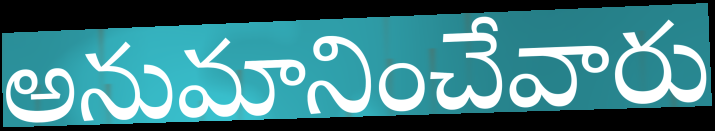
అనుమానించేవారు